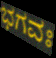
ಭಗವಃ